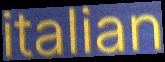
italian